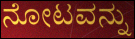
ನೋಟವನ್ನು